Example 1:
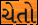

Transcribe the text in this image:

ચેતો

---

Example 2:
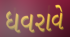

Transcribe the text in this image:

ધવરાવે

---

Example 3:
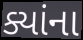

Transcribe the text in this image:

ક્યાંના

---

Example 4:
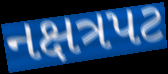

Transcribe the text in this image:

નક્ષત્રપટ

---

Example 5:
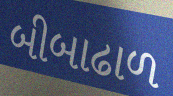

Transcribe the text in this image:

બીબાઢાળ